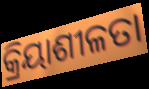
କ୍ରିୟାଶୀଳତା